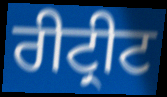
ਰੀਟ੍ਰੀਟ